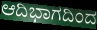
ಆದಿಭಾಗದಿಂದ